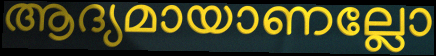
ആദ്യമായാണല്ലോ